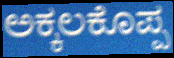
ಅಕ್ಕಲಕೊಪ್ಪ